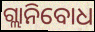
ଗ୍ଲାନିବୋଧ